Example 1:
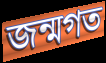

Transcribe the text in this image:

জন্মগত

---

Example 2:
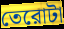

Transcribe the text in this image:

তেরোটা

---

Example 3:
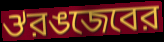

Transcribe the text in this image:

ঔরঙজেবের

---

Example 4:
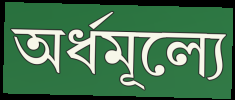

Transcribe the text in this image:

অর্ধমূল্যে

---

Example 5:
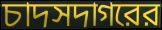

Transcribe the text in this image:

চাদসদাগরের